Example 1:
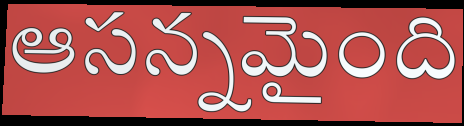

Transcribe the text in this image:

ఆసన్నమైంది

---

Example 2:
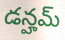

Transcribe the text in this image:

డన్హమ్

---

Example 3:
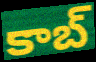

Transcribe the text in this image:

కాబ్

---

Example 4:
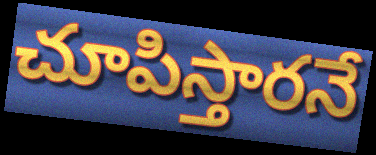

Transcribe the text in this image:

చూపిస్తారనే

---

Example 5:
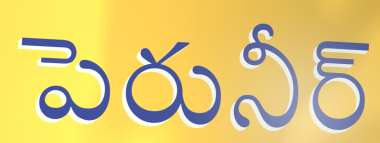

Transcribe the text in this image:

పెరునీర్